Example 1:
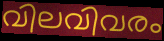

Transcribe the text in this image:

വിലവിവരം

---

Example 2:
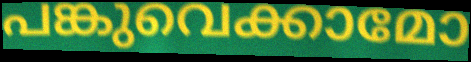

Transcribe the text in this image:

പങ്കുവെക്കാമോ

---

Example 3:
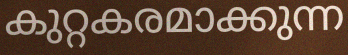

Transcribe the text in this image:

കുറ്റകരമാക്കുന്ന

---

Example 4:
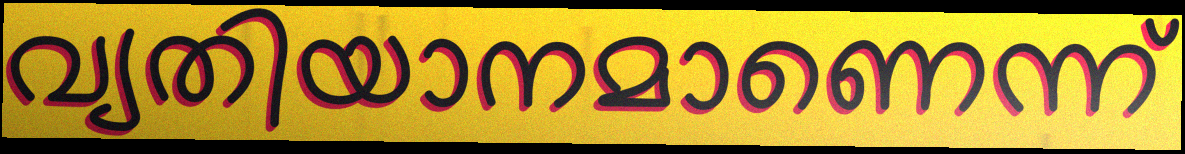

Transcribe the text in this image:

വ്യതിയാനമാണെന്ന്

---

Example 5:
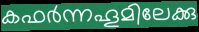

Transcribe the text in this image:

കഫർന്നഹൂമിലേക്കു